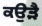
ਕਉੜੈ